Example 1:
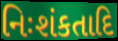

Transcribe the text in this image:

નિઃશંકતાદિ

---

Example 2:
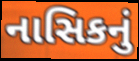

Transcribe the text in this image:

નાસિકનું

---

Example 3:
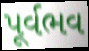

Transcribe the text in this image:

પૂર્વભવ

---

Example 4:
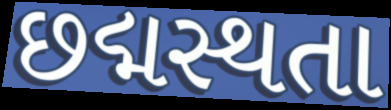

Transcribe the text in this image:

છદ્મસ્થતા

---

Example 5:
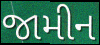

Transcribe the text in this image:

જામીન